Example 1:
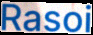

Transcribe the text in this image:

Rasoi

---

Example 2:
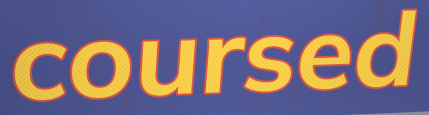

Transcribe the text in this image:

coursed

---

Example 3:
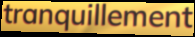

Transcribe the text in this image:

tranquillement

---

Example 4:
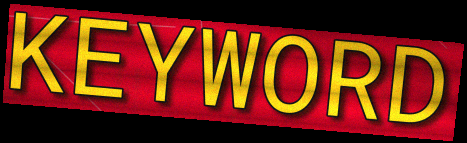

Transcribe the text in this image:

KEYWORD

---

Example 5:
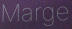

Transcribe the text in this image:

Marge